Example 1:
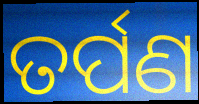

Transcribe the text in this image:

ତର୍ପଣ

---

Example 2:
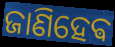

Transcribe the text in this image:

ଜାଣିହେଵ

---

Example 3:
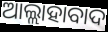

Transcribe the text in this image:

ଆଲ୍ଲାହାବାଦ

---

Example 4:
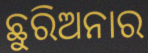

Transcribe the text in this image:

ଛୁରିଅନାର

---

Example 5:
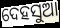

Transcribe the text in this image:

ଦେହସୁଆ